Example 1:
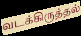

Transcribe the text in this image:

வடக்கிருத்தல்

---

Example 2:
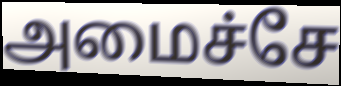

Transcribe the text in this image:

அமைச்சே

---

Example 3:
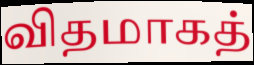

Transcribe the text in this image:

விதமாகத்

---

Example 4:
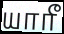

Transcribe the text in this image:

யாரீ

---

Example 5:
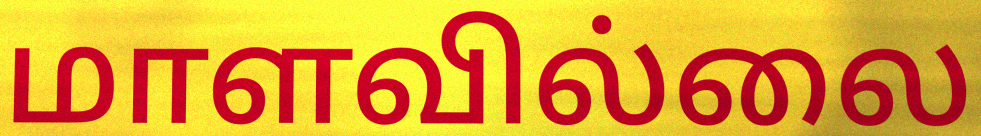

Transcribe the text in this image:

மாளவில்லை